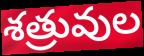
శత్రువుల